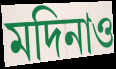
মদিনাও